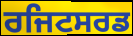
ਰਜਿਟਸਰਡ